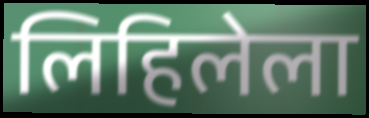
लिहिलेला